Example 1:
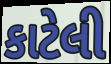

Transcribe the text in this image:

કાટેલી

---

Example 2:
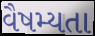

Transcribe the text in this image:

વૈષમ્યતા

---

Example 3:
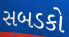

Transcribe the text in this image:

સબડકો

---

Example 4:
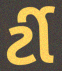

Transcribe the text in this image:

ર્ટી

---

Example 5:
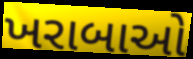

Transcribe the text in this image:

ખરાબાઓ